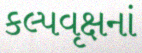
કલ્પવૃક્ષનાં